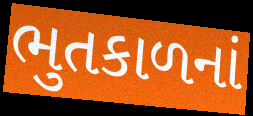
ભુતકાળનાં